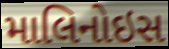
માલિનોઇસ